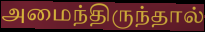
அமைந்திருந்தால்